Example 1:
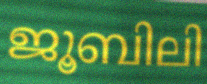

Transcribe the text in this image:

ജൂബിലി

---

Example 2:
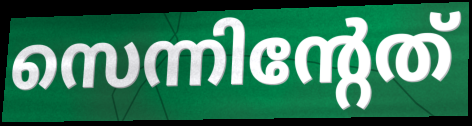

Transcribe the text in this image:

സെന്നിന്റേത്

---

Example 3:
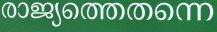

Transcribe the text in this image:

രാജ്യത്തെതന്നെ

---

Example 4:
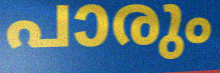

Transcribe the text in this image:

പാരും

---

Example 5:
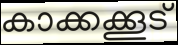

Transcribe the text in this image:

കാക്കക്കൂട്